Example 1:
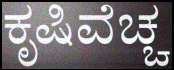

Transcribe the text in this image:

ಕೃಷಿವೆಚ್ಚ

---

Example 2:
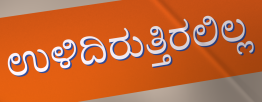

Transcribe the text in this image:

ಉಳಿದಿರುತ್ತಿರಲಿಲ್ಲ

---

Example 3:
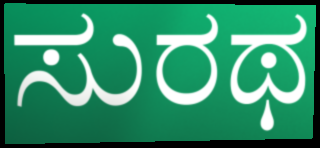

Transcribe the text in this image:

ಸುರಥ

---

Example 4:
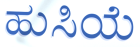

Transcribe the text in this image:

ಹುಸಿಯೆ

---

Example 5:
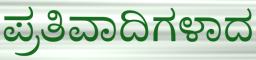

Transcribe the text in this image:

ಪ್ರತಿವಾದಿಗಳಾದ